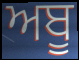
ਅਬੂ